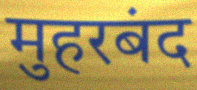
मुहरबंद